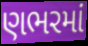
ણભરમાં